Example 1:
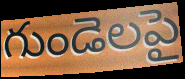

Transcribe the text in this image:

గుండెలపై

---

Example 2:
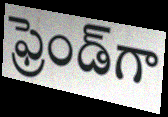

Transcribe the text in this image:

ఫ్రెండ్‌గా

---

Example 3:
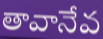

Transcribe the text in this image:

తావానేవ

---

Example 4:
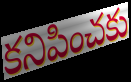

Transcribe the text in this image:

కనిపించకు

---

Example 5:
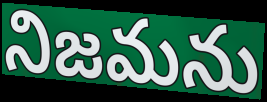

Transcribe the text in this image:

నిజమను